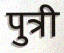
पुत्री